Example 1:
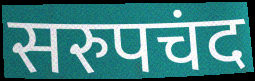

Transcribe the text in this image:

सरुपचंद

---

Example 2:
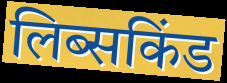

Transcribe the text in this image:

लिब्सकिंड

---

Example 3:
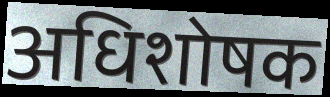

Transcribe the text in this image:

अधिशोषक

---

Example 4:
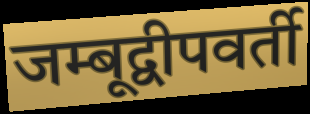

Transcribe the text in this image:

जम्बूद्वीपवर्ती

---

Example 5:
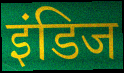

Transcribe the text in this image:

इंडिज